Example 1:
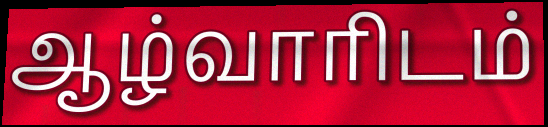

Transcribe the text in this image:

ஆழ்வாரிடம்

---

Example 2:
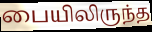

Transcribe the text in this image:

பையிலிருந்த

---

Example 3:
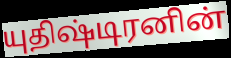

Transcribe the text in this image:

யுதிஷ்டிரனின்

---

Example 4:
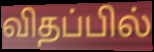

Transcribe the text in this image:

விதப்பில்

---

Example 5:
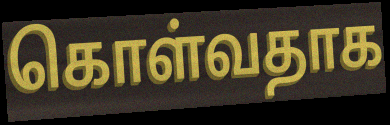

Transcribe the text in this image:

கொள்வதாக